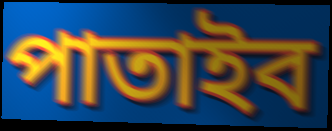
পাতাইব